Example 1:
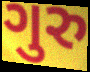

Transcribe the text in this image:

ગુરુ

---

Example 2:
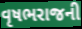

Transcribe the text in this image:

વૃષભરાજની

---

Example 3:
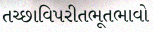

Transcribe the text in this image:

તચ્છાવિપરીતભૂતભાવો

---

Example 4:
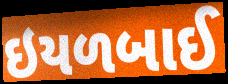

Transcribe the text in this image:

ઇયળબાઈ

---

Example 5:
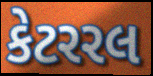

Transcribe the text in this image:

કેટરરલ